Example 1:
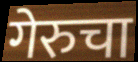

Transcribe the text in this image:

गेरुचा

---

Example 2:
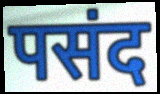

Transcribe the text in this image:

पसंद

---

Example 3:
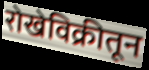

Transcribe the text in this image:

रोखेविक्रीतून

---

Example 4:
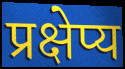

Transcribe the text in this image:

प्रक्षेप्य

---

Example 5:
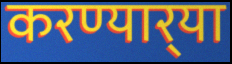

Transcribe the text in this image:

करण्यार्‍या